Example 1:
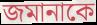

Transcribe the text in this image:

জমানাকে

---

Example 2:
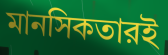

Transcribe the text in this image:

মানসিকতারই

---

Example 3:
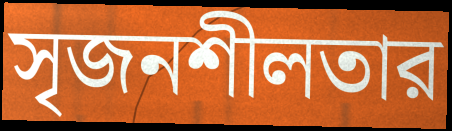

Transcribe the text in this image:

সৃজনশীলতার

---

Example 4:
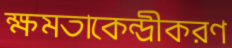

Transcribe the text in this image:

ক্ষমতাকেন্দ্রীকরণ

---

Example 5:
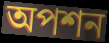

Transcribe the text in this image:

অপশন